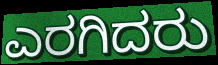
ಎರಗಿದರು